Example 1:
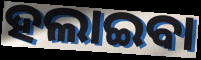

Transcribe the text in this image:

ହଲାଇବା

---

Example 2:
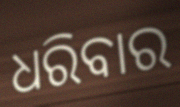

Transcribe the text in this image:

ଧରିବାର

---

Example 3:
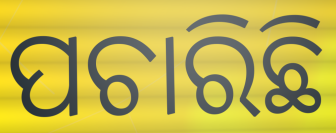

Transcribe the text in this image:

ପଚାରିଛି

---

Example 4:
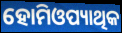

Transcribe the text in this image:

ହୋମିଓପ୍ୟାଥିକ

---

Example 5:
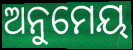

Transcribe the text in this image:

ଅନୁମେୟ